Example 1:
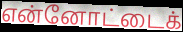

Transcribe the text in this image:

என்னோட்டைக்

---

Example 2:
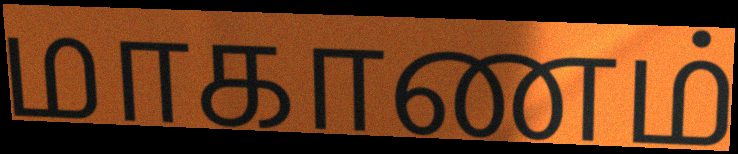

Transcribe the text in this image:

மாகாணம்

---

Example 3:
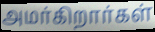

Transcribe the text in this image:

அமர்கிறார்கள்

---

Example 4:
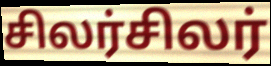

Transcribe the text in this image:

சிலர்சிலர்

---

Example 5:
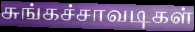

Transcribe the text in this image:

சுங்கச்சாவடிகள்